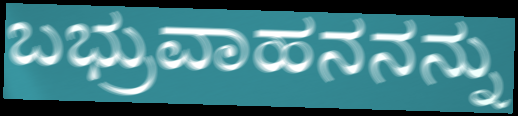
ಬಭ್ರುವಾಹನನನ್ನು